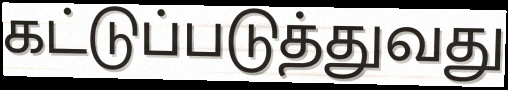
கட்டுப்படுத்துவது